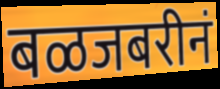
बळजबरीनं